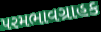
પરમભાવગ્રાહક